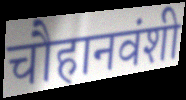
चौहानवंशी